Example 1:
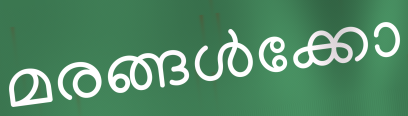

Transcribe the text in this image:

മരങ്ങൾക്കോ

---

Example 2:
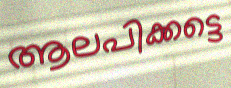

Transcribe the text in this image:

ആലപിക്കട്ടെ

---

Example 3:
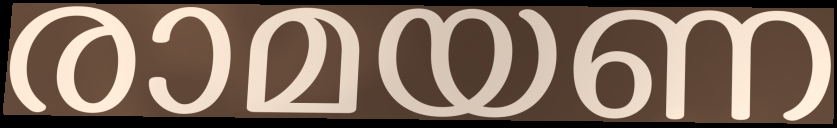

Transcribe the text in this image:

രാമയണ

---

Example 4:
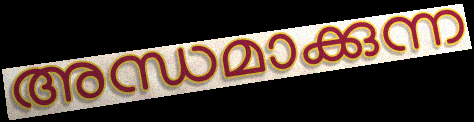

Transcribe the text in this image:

അന്ധമാക്കുന്ന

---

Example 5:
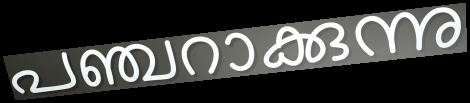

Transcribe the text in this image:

പഞ്ചറാക്കുന്നു